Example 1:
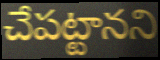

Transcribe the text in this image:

చేపట్టానని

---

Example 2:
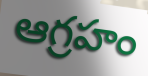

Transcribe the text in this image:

ఆగ్రహం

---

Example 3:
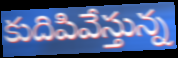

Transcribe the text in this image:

కుదిపివేస్తున్న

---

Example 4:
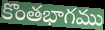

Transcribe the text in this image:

కొంతభాగము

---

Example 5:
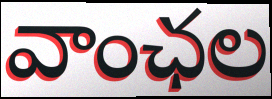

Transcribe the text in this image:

వాంఛల